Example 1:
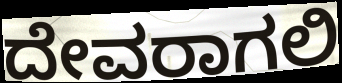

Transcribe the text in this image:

ದೇವರಾಗಲಿ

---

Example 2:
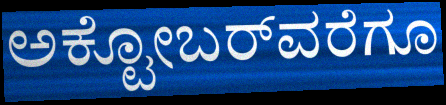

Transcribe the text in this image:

ಅಕ್ಟೋಬರ್‌ವರೆಗೂ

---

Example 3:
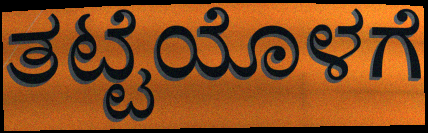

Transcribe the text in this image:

ತಟ್ಟೆಯೊಳಗೆ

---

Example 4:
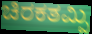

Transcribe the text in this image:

ಚಿರಕತಮ್ಪಿ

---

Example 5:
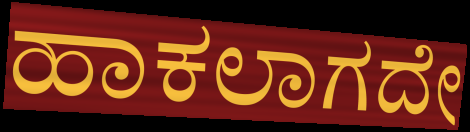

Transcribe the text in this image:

ಹಾಕಲಾಗದೇ